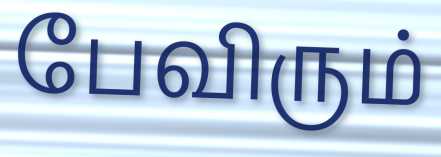
பேவிரும்